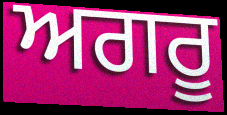
ਅਗਰੂ